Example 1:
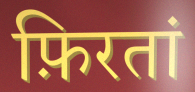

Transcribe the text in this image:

फ़िरतां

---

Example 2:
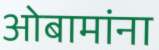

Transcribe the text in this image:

ओबामांना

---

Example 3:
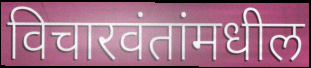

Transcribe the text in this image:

विचारवंतांमधील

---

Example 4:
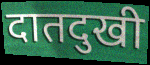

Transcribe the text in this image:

दातदुखी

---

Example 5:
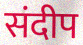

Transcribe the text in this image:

संदीप